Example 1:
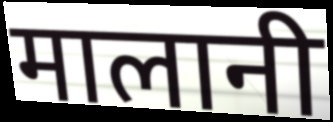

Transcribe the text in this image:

मालानी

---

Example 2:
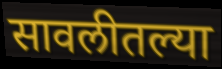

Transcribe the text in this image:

सावलीतल्या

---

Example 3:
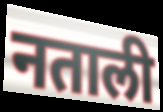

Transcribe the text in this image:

नताली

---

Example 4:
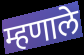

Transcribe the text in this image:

म्हणाले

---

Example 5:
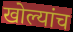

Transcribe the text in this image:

खोल्यांच